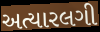
અત્યારલગી